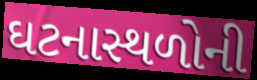
ઘટનાસ્થળોની